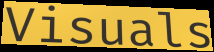
Visuals